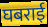
घबराई